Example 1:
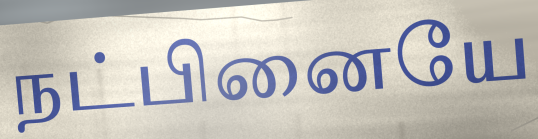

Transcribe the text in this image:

நட்பினையே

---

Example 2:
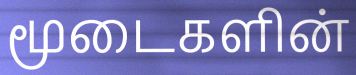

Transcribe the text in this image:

மூடைகளின்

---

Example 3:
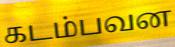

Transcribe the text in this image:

கடம்பவன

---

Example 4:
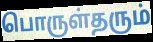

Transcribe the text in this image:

பொருள்தரும்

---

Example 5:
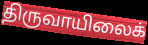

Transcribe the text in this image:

திருவாயிலைக்